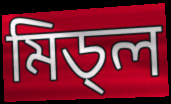
মিড্‌ল